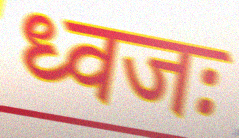
ध्वजः